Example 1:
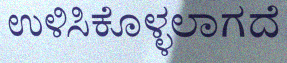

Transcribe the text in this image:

ಉಳಿಸಿಕೊಳ್ಳಲಾಗದೆ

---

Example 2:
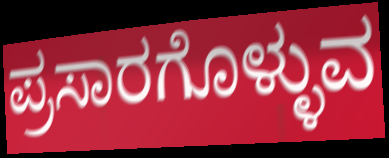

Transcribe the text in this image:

ಪ್ರಸಾರಗೊಳ್ಳುವ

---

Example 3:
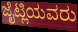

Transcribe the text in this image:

ಜೈಟ್ಲಿಯವರು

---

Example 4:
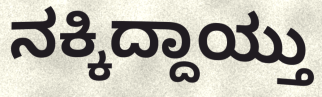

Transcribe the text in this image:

ನಕ್ಕಿದ್ದಾಯ್ತು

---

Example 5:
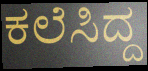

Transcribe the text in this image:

ಕಲೆಸಿದ್ದ